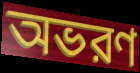
অভরণ